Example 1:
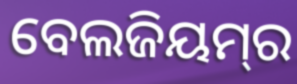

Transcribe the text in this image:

ବେଲଜିୟମ୍‌ର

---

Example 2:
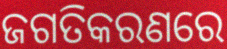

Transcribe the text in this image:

ଜଗତିକରଣରେ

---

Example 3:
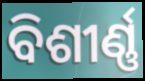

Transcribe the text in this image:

ବିଶୀର୍ଣ୍ଣ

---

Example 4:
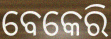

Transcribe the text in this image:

ବେକେରି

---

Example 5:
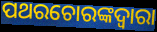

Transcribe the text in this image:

ପଥରଚୋରଙ୍କଦ୍ୱାରା